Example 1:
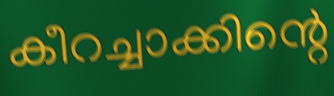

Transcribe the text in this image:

കീറച്ചാക്കിന്റെ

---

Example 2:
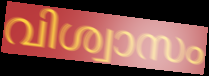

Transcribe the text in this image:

വിശ്വാസം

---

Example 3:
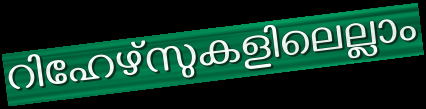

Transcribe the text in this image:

റിഹേഴ്സുകളിലെല്ലാം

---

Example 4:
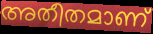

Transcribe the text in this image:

അതീതമാണ്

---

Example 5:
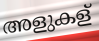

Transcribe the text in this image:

അളുകള്